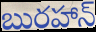
బురహాన్